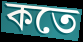
কতে